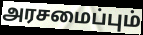
அரசமைப்பும்